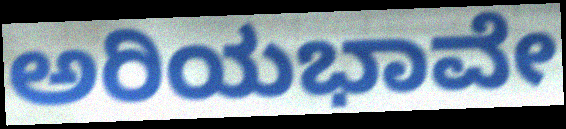
ಅರಿಯಭಾವೇ